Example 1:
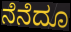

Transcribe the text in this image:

ನೆನೆದೂ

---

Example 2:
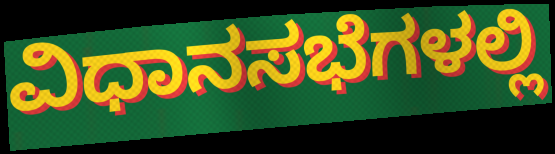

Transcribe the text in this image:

ವಿಧಾನಸಭೆಗಳಲ್ಲಿ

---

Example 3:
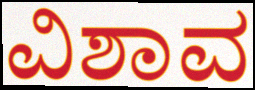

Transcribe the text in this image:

ವಿಶಾವ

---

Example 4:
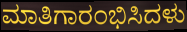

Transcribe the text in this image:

ಮಾತಿಗಾರಂಭಿಸಿದಳು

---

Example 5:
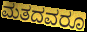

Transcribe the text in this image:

ಮತದವರೂ